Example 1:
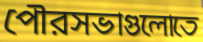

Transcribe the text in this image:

পৌরসভাগুলোতে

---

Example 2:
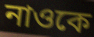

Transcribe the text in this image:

নাওকে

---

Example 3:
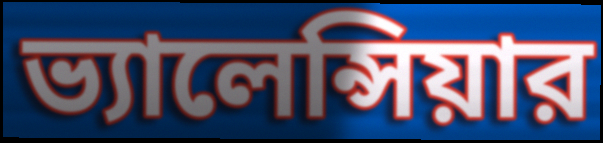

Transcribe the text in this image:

ভ্যালেন্সিয়ার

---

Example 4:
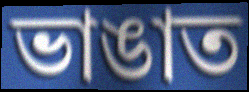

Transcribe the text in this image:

ভাঙাত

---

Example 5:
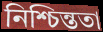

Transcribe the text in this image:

নিশ্চিন্ততা